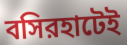
বসিরহাটেই